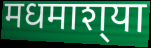
मधमाश्या